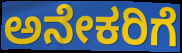
ಅನೇಕರಿಗೆ